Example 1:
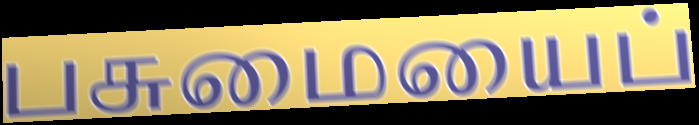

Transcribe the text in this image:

பசுமையைப்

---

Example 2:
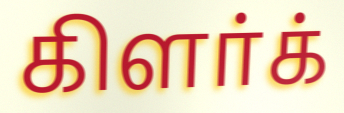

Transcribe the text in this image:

கிளர்க்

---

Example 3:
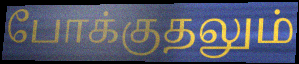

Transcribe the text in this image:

போக்குதலும்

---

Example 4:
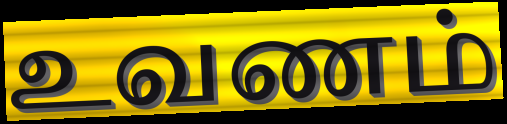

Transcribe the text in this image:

உவணம்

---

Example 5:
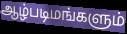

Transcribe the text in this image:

ஆழ்படிமங்களும்